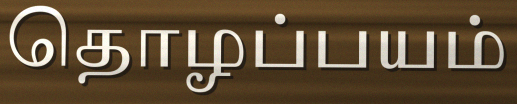
தொழப்பயம்